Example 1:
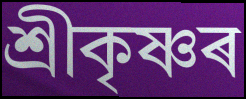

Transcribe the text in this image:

শ্ৰীকৃষ্ণৰ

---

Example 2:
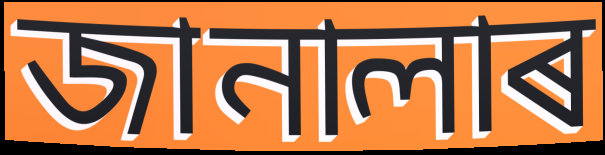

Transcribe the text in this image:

জানালাৰ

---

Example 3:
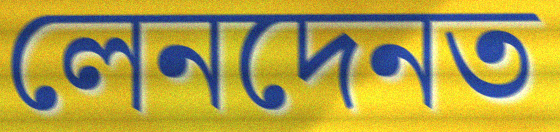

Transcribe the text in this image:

লেনদেনত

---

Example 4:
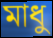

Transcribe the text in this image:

মাধু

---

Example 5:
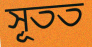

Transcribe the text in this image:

সূতত